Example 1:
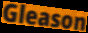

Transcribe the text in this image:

Gleason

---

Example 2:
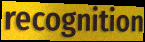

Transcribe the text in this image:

recognition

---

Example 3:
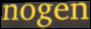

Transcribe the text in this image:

nogen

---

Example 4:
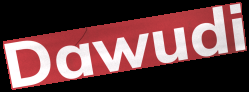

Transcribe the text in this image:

Dawudi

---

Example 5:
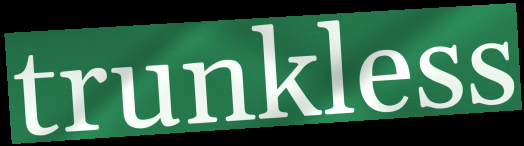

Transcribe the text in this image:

trunkless